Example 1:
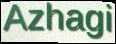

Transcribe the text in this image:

Azhagi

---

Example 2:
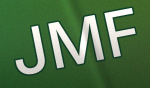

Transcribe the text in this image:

JMF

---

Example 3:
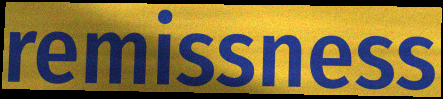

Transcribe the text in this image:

remissness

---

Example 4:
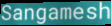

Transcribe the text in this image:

Sangamesh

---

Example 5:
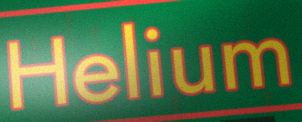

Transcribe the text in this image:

Helium